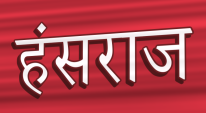
हंसराज